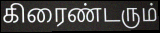
கிரைண்டரும்